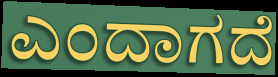
ಎಂದಾಗದೆ